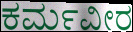
ಕರ್ಮವೀರ